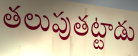
తలుపుతట్టాడు